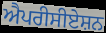
ਐਪਰੀਸੀਏਸ਼ਨ